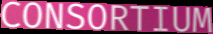
CONSORTIUM